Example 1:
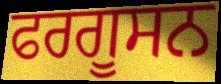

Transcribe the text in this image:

ਫਰਗੂਸਨ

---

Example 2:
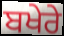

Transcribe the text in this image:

ਬਖੇਰੇ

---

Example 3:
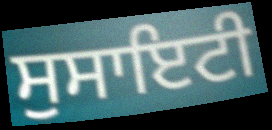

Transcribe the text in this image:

ਸੁਸਾਇਟੀ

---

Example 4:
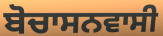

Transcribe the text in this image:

ਬੋਚਾਸਨਵਾਸੀ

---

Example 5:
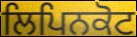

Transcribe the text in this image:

ਲਿਪਿਨਕੋਟ